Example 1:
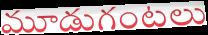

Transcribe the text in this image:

మూడుగంటలు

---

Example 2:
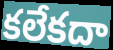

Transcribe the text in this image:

కలేకదా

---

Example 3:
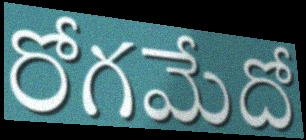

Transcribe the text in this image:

రోగమేదో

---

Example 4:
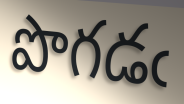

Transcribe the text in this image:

పొగడఁ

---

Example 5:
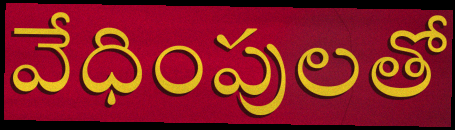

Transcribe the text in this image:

వేధింపులతో